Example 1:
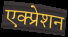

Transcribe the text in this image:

एक्प्रेशन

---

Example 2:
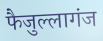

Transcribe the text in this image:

फैजुल्लागंज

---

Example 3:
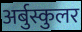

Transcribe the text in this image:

अर्बुस्कुलर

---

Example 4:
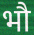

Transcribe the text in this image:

भौ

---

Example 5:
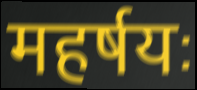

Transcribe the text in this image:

महर्षयः